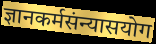
ज्ञानकर्मसंन्यासयोग